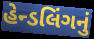
હેન્ડલિંગનું